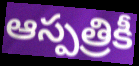
ఆస్పత్రికీ